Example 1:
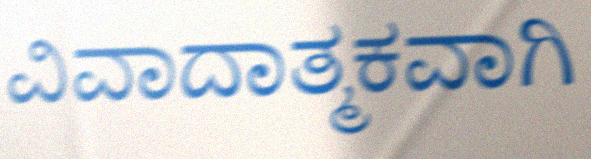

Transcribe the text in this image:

ವಿವಾದಾತ್ಮಕವಾಗಿ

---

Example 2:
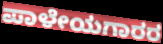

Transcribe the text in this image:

ಪಾಳೇಯಗಾರರ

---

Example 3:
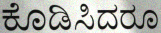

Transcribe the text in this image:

ಕೊಡಿಸಿದರೂ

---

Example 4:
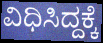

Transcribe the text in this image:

ವಿಧಿಸಿದ್ದಕ್ಕೆ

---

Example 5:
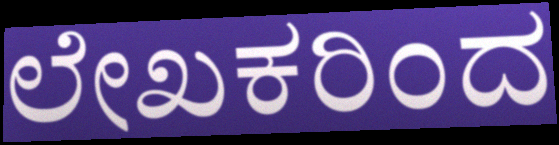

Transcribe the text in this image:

ಲೇಖಕರಿಂದ